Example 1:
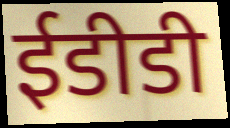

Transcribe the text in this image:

ईडीडी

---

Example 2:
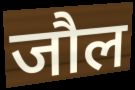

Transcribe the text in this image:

जौल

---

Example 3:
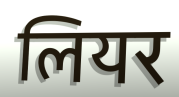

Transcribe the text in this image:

लियर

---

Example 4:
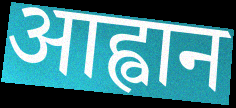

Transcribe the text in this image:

आह्वान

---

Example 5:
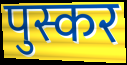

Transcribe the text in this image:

पुस्कर